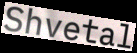
Shvetal